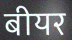
बीयर